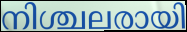
നിശ്ചലരായി